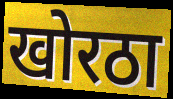
खोरठा